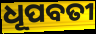
ଧୂପବତୀ